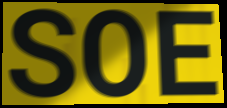
SOE